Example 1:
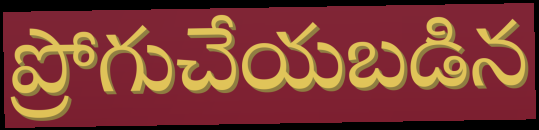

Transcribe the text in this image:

ప్రోగుచేయబడిన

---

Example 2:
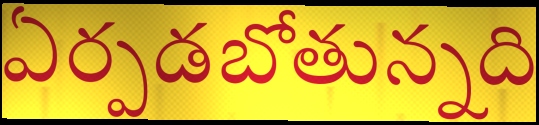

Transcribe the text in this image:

ఏర్పడబోతున్నది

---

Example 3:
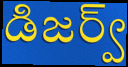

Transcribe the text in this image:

డిజర్వ్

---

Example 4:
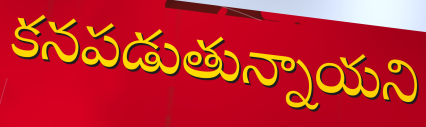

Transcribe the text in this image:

కనపడుతున్నాయని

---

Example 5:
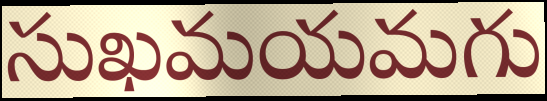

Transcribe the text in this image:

సుఖమయమగు